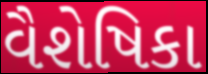
વૈશેષિકા